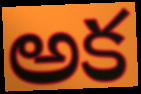
అక